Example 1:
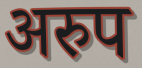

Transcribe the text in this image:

अरुप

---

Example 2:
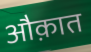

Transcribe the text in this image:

औक़ात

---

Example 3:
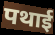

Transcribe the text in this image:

पथाई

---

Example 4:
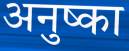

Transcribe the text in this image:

अनुष्का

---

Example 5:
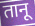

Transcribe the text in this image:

तानू